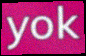
yok